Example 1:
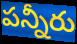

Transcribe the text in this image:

పన్నీరు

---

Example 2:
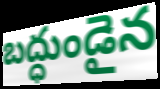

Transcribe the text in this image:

బద్ధుండైన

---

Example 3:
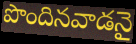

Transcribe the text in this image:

పొందినవాడనై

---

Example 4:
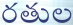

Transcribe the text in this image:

రతుల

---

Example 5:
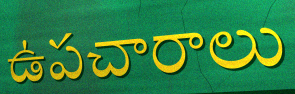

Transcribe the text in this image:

ఉపచారాలు